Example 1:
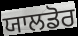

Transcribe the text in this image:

ਯਾਲਡੋਰ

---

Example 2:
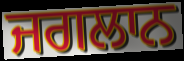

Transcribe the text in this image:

ਜਗਲਾਨ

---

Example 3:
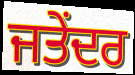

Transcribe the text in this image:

ਜਤੇਂਦਰ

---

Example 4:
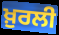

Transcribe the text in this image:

ਖ਼ੁਰਲੀ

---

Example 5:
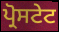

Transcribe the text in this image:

ਪ੍ਰੋਸਟੇਟ